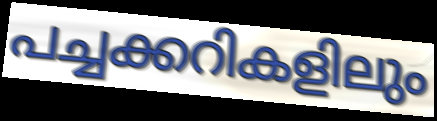
പച്ചക്കറികളിലും